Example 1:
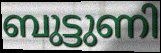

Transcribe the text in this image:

ബുട്ടുണി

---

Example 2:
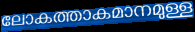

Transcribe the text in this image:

ലോകത്താകമാനമുള്ള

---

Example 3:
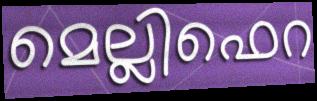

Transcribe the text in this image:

മെല്ലിഫെറ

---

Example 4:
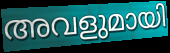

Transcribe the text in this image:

അവളുമായി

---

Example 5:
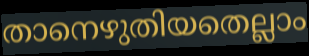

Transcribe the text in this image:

താനെഴുതിയതെല്ലാം